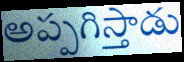
అప్పగిస్తాడు